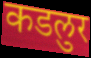
कडलुर